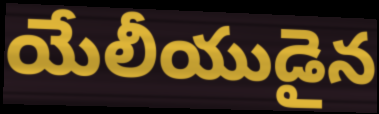
యేలీయుడైన